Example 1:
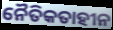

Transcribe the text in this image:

ନୈତିକତାହୀନ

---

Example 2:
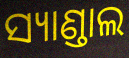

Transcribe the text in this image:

ସ୍ୟାଣ୍ଡାଲ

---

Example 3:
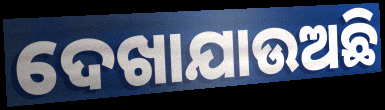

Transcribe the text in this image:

ଦେଖାଯାଉଅଛି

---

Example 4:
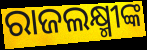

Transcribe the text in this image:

ରାଜଲକ୍ଷ୍ମୀଙ୍କ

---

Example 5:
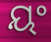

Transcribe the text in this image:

ୟଂ